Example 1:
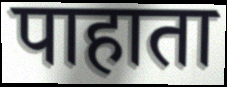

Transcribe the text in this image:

पाहाता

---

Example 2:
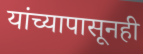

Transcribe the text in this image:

यांच्यापासूनही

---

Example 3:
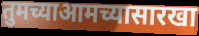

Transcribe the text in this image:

तुमच्याआमच्यासारखा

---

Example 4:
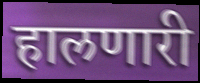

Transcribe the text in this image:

हालणारी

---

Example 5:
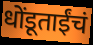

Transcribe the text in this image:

धोंडूताईंचं